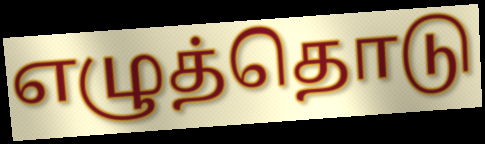
எழுத்தொடு